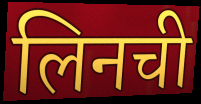
लिनची